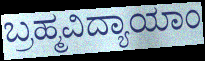
ಬ್ರಹ್ಮವಿದ್ಯಾಯಾಂ